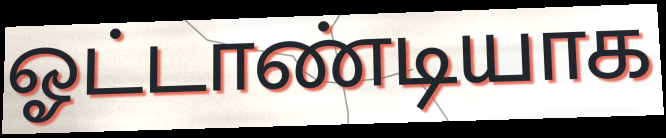
ஓட்டாண்டியாக